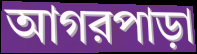
আগরপাড়া